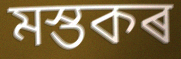
মস্তকৰ